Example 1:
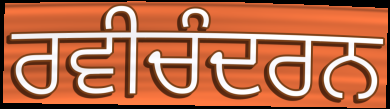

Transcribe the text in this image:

ਰਵੀਚੰਦਰਨ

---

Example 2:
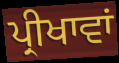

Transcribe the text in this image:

ਪ੍ਰੀਖਾਵਾਂ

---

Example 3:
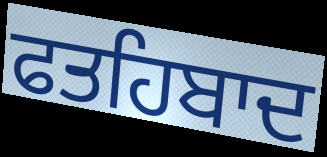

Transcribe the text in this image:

ਫਤਹਿਬਾਦ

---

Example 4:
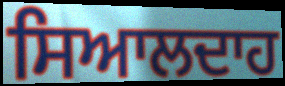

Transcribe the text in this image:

ਸਿਆਲਦਾਹ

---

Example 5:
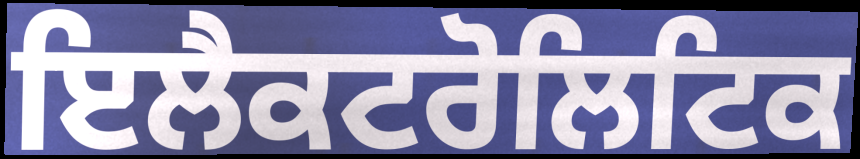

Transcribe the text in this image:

ਇਲੈਕਟਰੋਲਿਟਿਕ